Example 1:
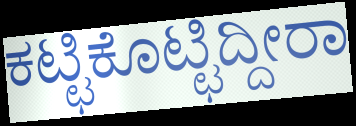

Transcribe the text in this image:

ಕಟ್ಟಿಕೊಟ್ಟಿದ್ದೀರಾ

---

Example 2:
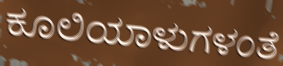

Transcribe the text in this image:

ಕೂಲಿಯಾಳುಗಳಂತೆ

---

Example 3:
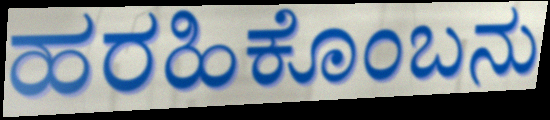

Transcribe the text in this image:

ಹರಹಿಕೊಂಬನು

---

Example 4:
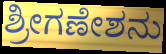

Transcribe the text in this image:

ಶ್ರೀಗಣೇಶನು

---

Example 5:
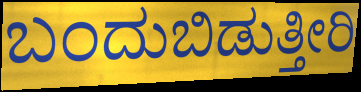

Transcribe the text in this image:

ಬಂದುಬಿಡುತ್ತೀರಿ